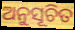
ଅନୁସୂଚିତ